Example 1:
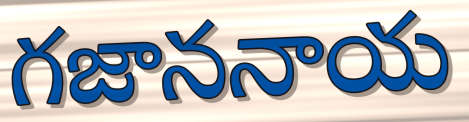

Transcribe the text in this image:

గజాననాయ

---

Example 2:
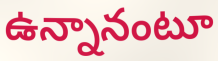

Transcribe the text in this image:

ఉన్నానంటూ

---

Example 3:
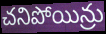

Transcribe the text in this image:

చనిపోయిన్రు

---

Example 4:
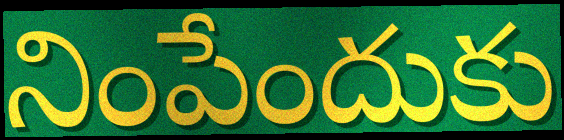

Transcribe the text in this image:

నింపేందుకు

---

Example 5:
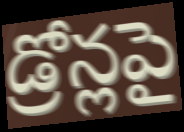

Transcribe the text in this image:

డ్రోన్లపై